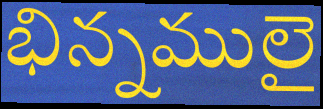
భిన్నములై